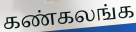
கண்கலங்க